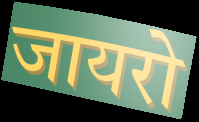
जायरो